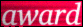
award